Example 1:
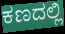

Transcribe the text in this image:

ಕಣದಲ್ಲಿ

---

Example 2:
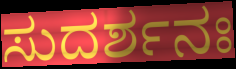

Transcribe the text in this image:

ಸುದರ್ಶನಃ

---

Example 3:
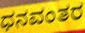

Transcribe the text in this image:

ಧನವಂತರ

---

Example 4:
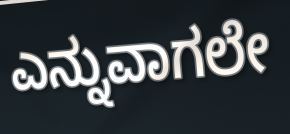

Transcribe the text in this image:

ಎನ್ನುವಾಗಲೇ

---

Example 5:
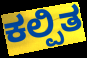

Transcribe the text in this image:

ಕಲ್ಪಿತ